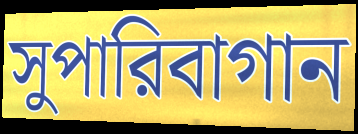
সুপারিবাগান